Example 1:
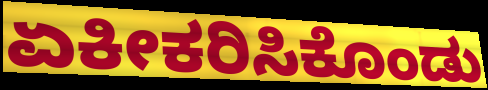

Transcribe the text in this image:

ಏಕೀಕರಿಸಿಕೊಂಡು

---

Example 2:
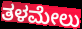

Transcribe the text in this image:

ತಳಮೇಲು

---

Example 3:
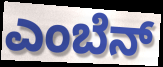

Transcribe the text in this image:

ಎಂಬೆನ್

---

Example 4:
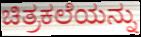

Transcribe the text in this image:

ಚಿತ್ರಕಲೆಯನ್ನು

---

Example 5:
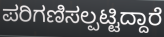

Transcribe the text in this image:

ಪರಿಗಣಿಸಲ್ಪಟ್ಟಿದ್ದಾರೆ